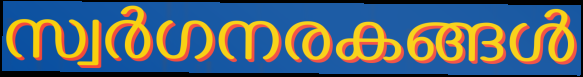
സ്വർഗനരകങ്ങൾ